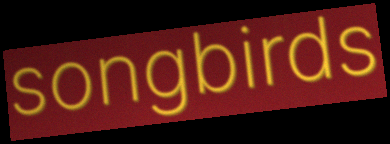
songbirds